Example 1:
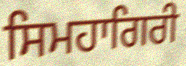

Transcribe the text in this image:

ਸਿਮਹਾਗਿਰੀ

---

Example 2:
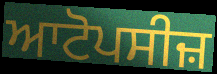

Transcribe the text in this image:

ਆਟੋਪਸੀਜ਼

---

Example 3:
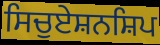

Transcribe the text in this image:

ਸਿਚੁਏਸ਼ਨਸ਼ਿਪ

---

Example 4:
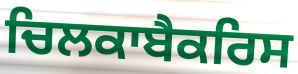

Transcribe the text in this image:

ਚਿਲਕਾਬੈਕਰਿਸ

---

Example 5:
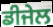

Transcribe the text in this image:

ਡੀਜੇਲ